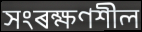
সংৰক্ষণশীল